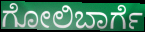
ಗೋಲಿಬಾರ್ಗೆ